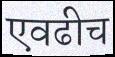
एवढीच